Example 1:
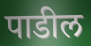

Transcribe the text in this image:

पाडील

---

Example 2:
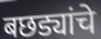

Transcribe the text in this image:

बछड्यांचे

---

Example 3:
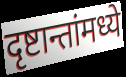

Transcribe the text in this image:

दृष्टान्तांमध्ये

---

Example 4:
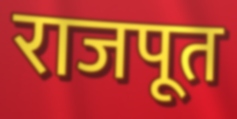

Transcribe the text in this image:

राजपूत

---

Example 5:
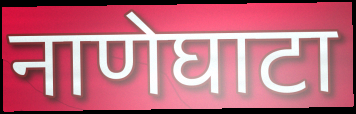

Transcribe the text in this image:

नाणेघाटा